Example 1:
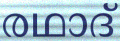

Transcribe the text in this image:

രഥാദ്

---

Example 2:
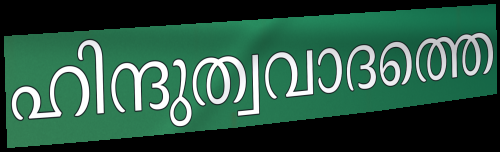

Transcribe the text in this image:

ഹിന്ദുത്വവാദത്തെ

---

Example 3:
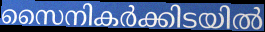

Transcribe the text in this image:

സൈനികർക്കിടയിൽ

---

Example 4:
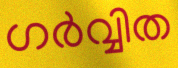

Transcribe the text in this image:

ഗർവ്വിത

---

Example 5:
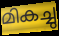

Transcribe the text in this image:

മികച്ചു